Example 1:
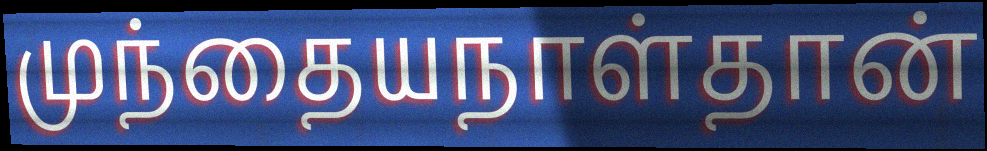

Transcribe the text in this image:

முந்தையநாள்தான்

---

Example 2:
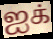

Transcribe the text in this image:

ஐக்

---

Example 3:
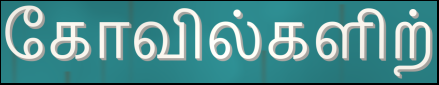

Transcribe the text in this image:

கோவில்களிற்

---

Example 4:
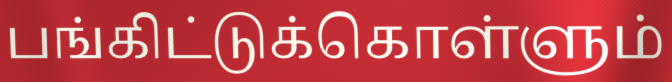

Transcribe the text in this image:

பங்கிட்டுக்கொள்ளும்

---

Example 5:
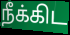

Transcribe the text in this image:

நீக்கிட